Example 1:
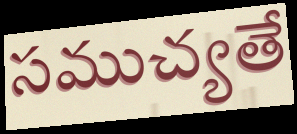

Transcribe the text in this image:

సముచ్యతే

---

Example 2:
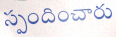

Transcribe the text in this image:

స్పందించారు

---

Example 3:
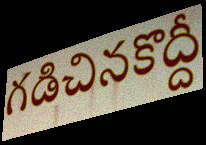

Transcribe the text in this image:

గడిచినకొద్దీ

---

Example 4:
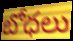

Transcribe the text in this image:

బోధలు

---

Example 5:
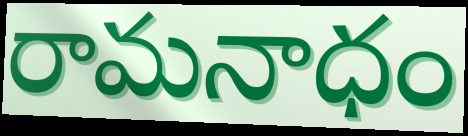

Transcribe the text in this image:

రామనాధం